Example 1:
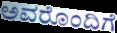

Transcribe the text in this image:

ಅವರೊಂದಿಗೆ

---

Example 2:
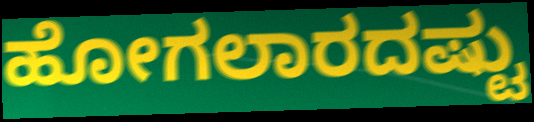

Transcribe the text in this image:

ಹೋಗಲಾರದಷ್ಟು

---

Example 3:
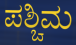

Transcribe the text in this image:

ಪಶ್ಚಿಮ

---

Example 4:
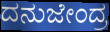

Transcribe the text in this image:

ದನುಜೇಂದ್ರ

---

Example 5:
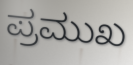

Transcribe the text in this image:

ಪ್ರಮುಖ